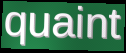
quaint